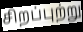
சிறப்புற்று